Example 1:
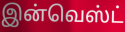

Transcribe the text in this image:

இன்வெஸ்ட்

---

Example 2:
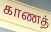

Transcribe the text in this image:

காணத்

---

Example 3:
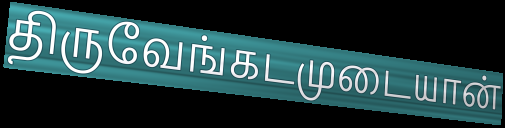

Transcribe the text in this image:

திருவேங்கடமுடையான்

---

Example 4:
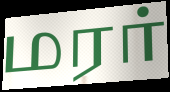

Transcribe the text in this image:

மரர்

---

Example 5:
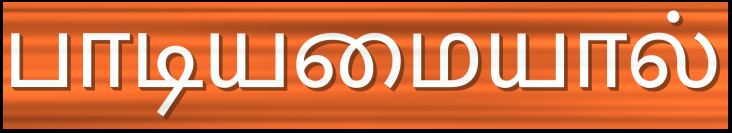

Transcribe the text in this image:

பாடியமையால்